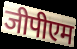
जीपीएम